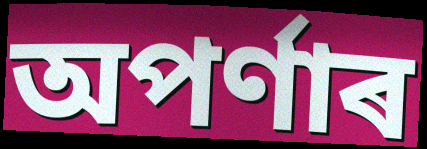
অপৰ্ণাৰ